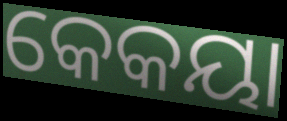
କେକୟା